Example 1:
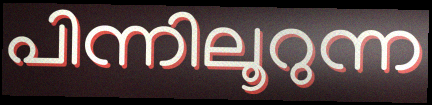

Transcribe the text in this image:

പിന്നിലൂറുന്ന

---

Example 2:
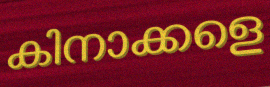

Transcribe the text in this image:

കിനാക്കളെ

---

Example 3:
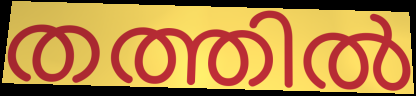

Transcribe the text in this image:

തത്തിൽ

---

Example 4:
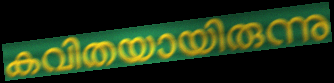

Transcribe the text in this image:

കവിതയായിരുന്നു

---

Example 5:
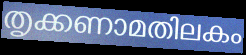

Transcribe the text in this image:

തൃക്കണാമതിലകം